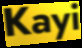
Kayi